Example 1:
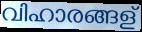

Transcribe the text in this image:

വിഹാരങ്ങള്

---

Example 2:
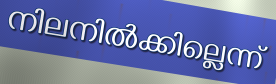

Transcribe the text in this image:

നിലനിൽക്കില്ലെന്ന്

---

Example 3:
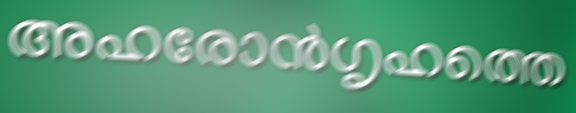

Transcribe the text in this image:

അഹരോൻഗൃഹത്തെ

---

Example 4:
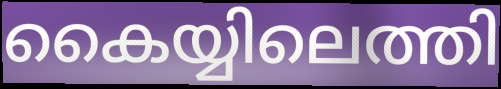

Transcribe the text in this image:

കൈയ്യിലെത്തി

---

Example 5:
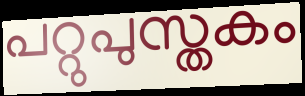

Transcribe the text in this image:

പറ്റുപുസ്തകം